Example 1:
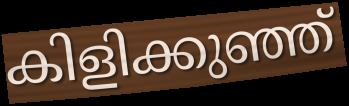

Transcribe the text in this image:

കിളിക്കുഞ്ഞ്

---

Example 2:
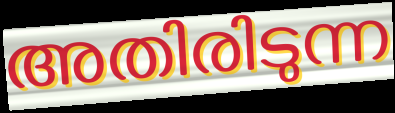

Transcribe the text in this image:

അതിരിടുന്ന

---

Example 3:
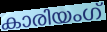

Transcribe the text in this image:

കാരിയംഗ്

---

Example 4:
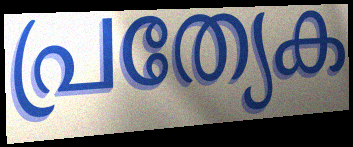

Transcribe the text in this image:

പ്രത്യേക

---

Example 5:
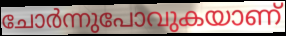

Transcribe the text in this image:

ചോർന്നുപോവുകയാണ്